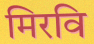
मिरवि